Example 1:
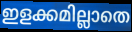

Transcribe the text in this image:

ഇളക്കമില്ലാതെ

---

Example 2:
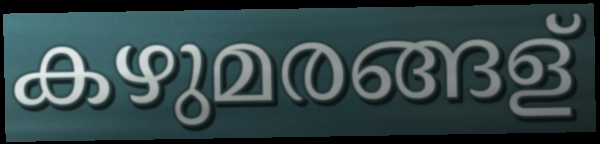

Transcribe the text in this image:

കഴുമരങ്ങള്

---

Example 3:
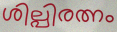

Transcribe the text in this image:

ശില്പിരത്നം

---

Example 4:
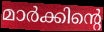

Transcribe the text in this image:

മാർക്കിന്റെ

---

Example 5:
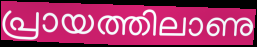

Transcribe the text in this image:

പ്രായത്തിലാണു